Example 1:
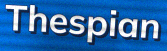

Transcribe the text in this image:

Thespian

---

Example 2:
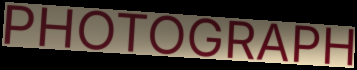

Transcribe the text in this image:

PHOTOGRAPH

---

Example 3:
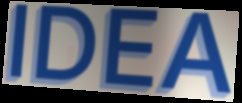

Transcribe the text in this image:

IDEA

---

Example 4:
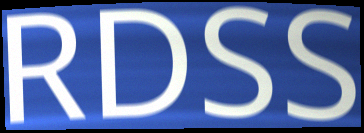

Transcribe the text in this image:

RDSS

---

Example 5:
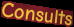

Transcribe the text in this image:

Consults